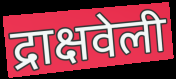
द्राक्षवेली